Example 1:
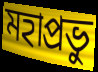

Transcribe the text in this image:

মহাপ্রভু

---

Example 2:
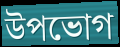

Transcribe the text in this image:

উপভোগ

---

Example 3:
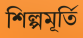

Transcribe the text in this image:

শিল্পমূর্তি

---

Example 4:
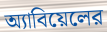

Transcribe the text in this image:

অ্যাবিয়েলের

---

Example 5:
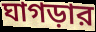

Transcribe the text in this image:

ঘাগড়ার